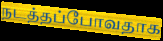
நடத்தப்போவதாக